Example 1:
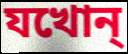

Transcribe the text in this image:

যখোন্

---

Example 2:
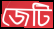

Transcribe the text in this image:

জেটি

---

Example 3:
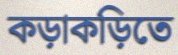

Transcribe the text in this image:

কড়াকড়িতে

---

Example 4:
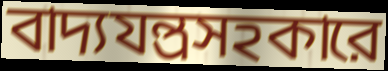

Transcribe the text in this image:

বাদ্যযন্ত্রসহকারে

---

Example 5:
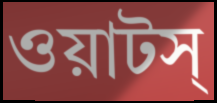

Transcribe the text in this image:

ওয়াটস্